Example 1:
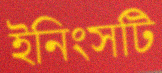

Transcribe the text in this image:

ইনিংসটি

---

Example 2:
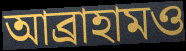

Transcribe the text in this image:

আব্রাহামও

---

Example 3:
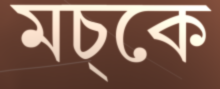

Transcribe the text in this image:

মচ্কে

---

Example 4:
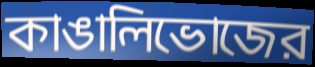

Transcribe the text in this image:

কাঙালিভোজের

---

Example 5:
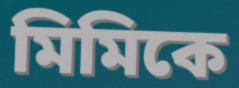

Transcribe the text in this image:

মিমিকে